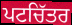
ਪਟਚਿੱਤਰ